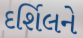
દર્શિલને